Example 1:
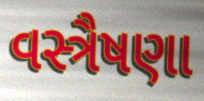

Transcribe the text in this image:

વસ્ત્રૈષણા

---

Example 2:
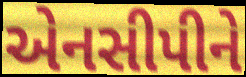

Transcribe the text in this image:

એનસીપીને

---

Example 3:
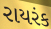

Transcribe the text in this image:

રાયરંક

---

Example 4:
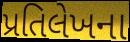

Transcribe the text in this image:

પ્રતિલેખના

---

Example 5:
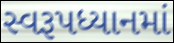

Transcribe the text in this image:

સ્વરૂપધ્યાનમાં